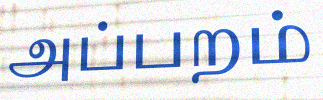
அப்பறம்